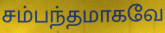
சம்பந்தமாகவே